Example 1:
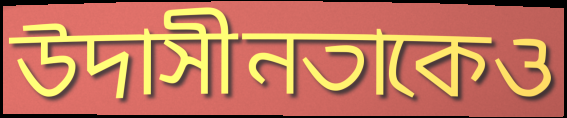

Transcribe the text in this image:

উদাসীনতাকেও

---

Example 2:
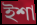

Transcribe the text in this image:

ইশা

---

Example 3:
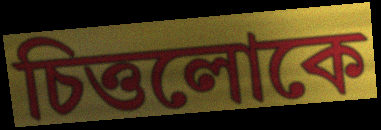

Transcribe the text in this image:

চিত্তলোকে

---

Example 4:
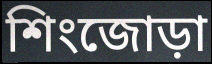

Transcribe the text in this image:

শিংজোড়া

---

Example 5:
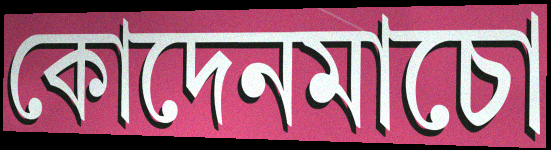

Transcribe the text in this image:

কোদেনমাচো